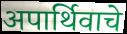
अपार्थिवाचे